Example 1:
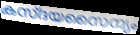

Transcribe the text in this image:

കസ്ദയസൈന്യം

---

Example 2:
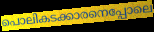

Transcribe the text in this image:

പൊലികടക്കാരനെപ്പോലെ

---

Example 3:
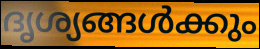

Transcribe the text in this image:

ദൃശ്യങ്ങൾക്കും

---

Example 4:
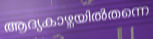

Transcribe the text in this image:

ആദ്യകാഴ്ചയിൽതന്നെ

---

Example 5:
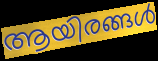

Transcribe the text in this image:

ആയിരങ്ങൾ